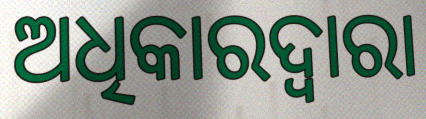
ଅଧିକାରଦ୍ୱାରା